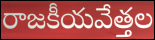
రాజకీయవేత్తల